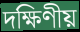
দক্ষিণীয়